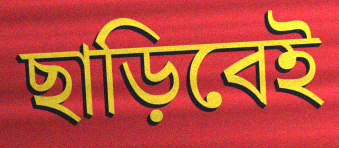
ছাড়িবেই